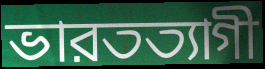
ভারতত্যাগী